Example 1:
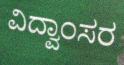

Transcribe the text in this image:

ವಿದ್ವಾಂಸರ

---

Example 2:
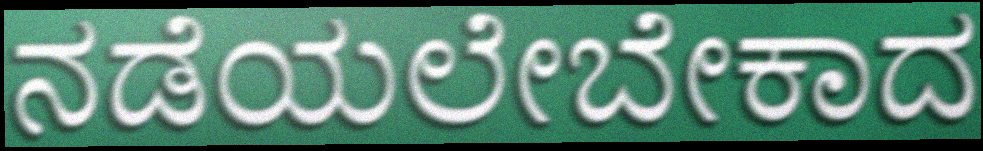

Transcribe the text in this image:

ನಡೆಯಲೇಬೇಕಾದ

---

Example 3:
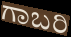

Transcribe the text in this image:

ಗಾಬರಿ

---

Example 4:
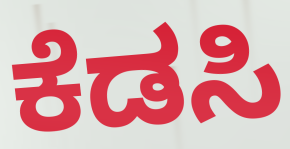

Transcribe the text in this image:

ಕೆಡಸಿ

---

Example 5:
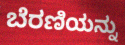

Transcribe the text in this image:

ಬೆರಣಿಯನ್ನು